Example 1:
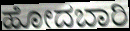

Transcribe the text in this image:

ಹೋದಬಾರಿ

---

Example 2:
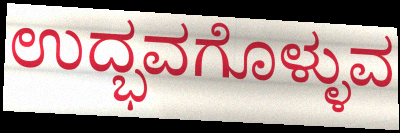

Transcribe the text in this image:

ಉದ್ಭವಗೊಳ್ಳುವ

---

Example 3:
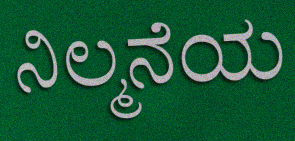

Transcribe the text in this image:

ನಿಲ್ಮನೆಯ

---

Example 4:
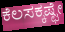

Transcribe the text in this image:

ಕೆಲಸಕ್ಕಷ್ಟೇ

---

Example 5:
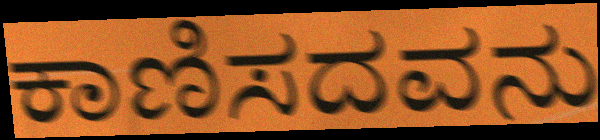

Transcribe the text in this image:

ಕಾಣಿಸದವನು